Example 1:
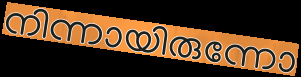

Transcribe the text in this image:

നിന്നായിരുന്നോ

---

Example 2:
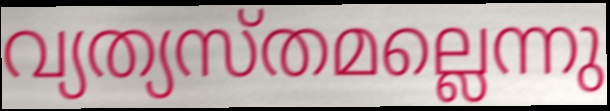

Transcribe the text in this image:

വ്യത്യസ്തമല്ലെന്നു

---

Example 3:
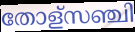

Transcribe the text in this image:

തോള്സഞ്ചി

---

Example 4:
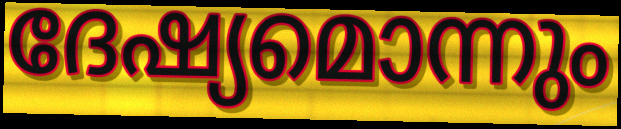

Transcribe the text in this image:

ദേഷ്യമൊന്നും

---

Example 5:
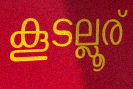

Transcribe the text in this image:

കൂടല്ലൂര്